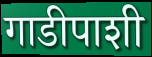
गाडीपाशी